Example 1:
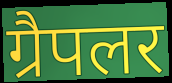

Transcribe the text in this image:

ग्रैपलर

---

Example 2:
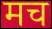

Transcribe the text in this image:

मच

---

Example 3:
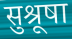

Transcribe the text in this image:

सुश्रूषा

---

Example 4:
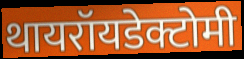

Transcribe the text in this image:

थायरॉयडेक्टोमी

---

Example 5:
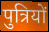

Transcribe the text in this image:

पुत्रियों